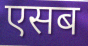
एसब